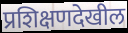
प्रशिक्षणदेखील